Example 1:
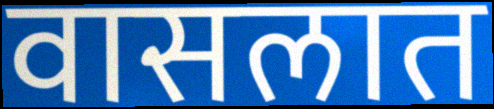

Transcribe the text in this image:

वासलात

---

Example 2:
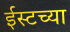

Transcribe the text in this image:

ईस्टच्या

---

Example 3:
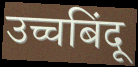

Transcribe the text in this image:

उच्चबिंदू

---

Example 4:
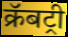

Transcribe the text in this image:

क्रॅबट्री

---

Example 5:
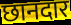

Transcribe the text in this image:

छानदार